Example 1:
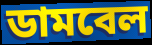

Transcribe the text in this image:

ডামবেল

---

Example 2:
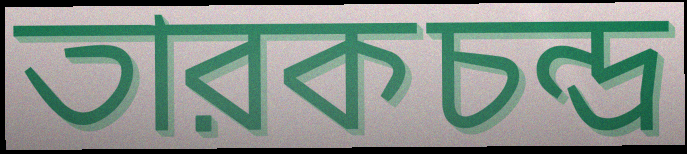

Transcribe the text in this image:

তারকচন্দ্র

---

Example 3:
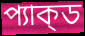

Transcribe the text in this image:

প্যাক্‌ড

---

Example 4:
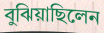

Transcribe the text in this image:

বুঝিয়াছিলেন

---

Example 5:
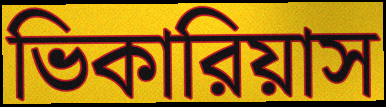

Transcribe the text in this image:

ভিকারিয়াস